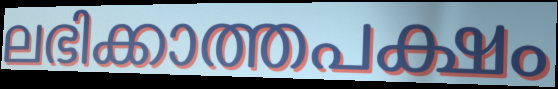
ലഭിക്കാത്തപക്ഷം